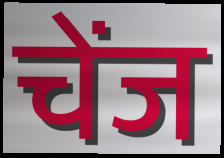
चेंज